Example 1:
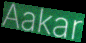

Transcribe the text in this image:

Aakar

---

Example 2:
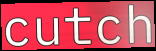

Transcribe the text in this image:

cutch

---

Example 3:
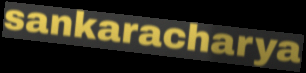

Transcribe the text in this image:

sankaracharya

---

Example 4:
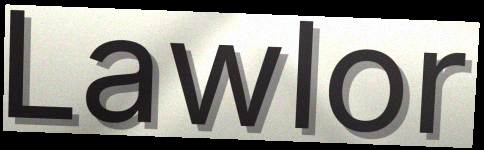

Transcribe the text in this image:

Lawlor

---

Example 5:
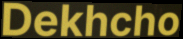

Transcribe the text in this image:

Dekhcho